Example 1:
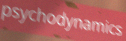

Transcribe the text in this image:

psychodynamics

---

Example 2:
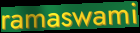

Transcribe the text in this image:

ramaswami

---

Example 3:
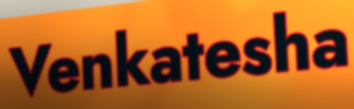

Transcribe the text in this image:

Venkatesha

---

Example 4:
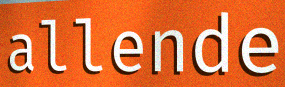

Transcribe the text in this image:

allende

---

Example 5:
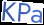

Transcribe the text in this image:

KPa